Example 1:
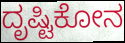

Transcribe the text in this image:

ದೃಷ್ಟಿಕೋನ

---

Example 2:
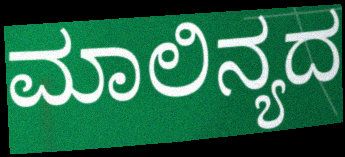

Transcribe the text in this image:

ಮಾಲಿನ್ಯದ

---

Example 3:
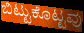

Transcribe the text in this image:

ಬಿಟ್ಟುಕೊಟ್ಟವು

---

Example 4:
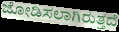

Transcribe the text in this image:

ಜೋಡಿಸಲಾಗಿರುತ್ತದೆ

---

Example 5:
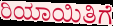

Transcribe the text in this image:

ರಿಯಾಯಿತಿಗೆ